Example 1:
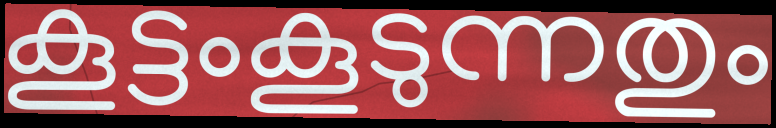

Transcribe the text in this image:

കൂട്ടംകൂടുന്നതും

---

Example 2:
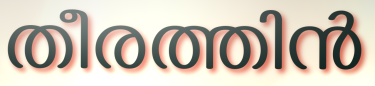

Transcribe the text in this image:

തീരത്തിൻ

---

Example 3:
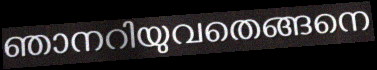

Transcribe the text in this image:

ഞാനറിയുവതെങ്ങനെ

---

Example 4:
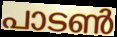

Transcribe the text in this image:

പാടൺ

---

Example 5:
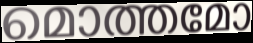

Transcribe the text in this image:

മൊത്തമോ